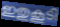
ഇതുകൂടി